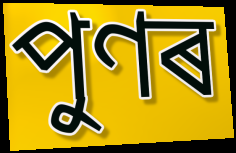
পুণৰ